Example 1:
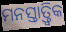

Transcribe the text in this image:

ମନସ୍ତାତ୍ତ୍ୱିକ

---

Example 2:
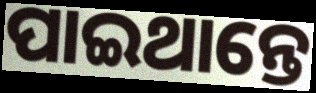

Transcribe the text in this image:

ପାଇଥାନ୍ତେ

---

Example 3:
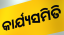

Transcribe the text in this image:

କାର୍ଯ୍ୟସମିତି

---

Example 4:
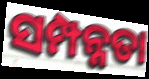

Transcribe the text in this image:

ସମ୍ପନ୍ନତା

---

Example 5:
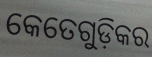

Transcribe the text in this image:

କେତେଗୁଡ଼ିକର